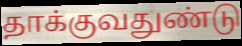
தாக்குவதுண்டு